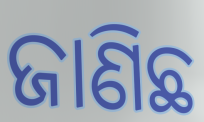
ଜାଣିଛ